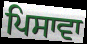
ਪਿਸਾਵਾ